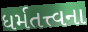
ધર્મતત્ત્વના